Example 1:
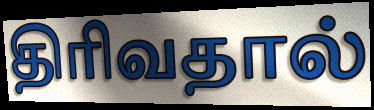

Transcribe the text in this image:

திரிவதால்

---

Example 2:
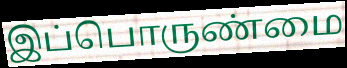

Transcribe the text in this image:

இப்பொருண்மை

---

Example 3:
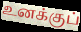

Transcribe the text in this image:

உனக்குப்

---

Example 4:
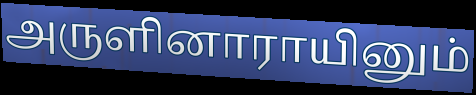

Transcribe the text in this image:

அருளினாராயினும்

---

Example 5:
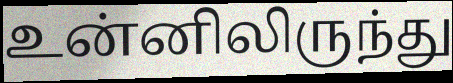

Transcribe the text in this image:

உன்னிலிருந்து